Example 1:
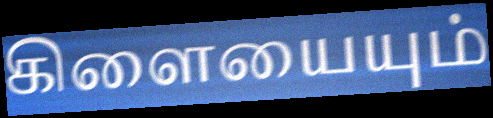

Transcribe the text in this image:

கிளையையும்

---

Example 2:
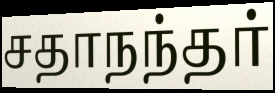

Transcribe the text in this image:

சதாநந்தர்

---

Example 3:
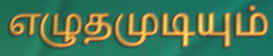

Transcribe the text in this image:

எழுதமுடியும்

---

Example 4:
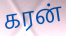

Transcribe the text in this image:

கரன்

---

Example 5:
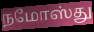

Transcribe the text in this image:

நமோஸ்து